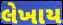
લેખાય